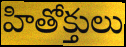
హితోక్తులు